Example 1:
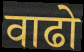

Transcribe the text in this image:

वाढो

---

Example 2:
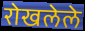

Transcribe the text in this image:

रोखलेले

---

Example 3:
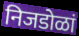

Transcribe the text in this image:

निजडोळां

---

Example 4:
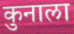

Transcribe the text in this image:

कुनाला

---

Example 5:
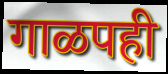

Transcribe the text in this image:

गाळपही